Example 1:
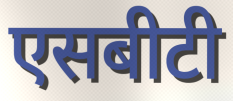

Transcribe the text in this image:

एसबीटी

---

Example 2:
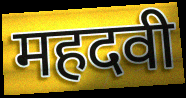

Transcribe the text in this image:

महदवी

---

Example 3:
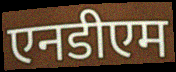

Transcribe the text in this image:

एनडीएम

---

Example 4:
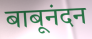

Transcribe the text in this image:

बाबूनंदन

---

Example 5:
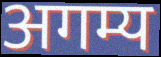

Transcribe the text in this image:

अगम्य